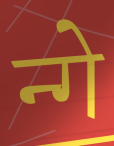
न्गे